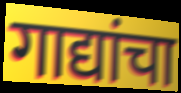
गाद्यांचा